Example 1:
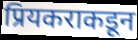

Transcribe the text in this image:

प्रियकराकडून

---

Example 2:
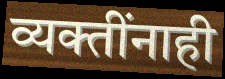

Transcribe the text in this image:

व्यक्तींनाही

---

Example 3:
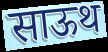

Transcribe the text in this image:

साऊथ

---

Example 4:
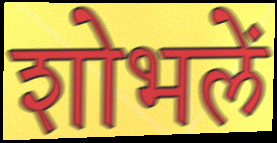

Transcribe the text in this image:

शोभलें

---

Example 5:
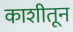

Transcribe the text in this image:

काशीतून